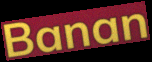
Banan